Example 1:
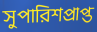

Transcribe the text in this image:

সুপারিশপ্রাপ্ত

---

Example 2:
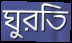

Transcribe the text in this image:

ঘুরতি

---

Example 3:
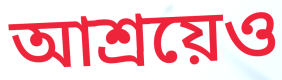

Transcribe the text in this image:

আশ্রয়েও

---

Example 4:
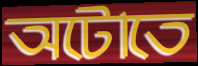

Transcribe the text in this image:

অটোতে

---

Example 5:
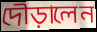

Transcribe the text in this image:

দৌড়ালেন